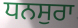
ਧਨਸੁਰਾ